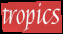
tropics